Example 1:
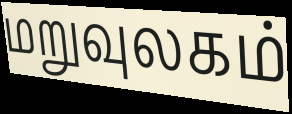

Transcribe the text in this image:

மறுவுலகம்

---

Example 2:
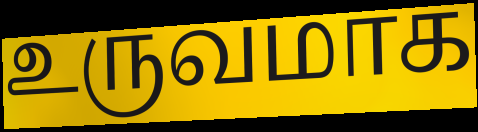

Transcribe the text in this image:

உருவமாக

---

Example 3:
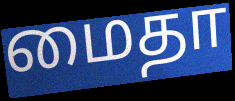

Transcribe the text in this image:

மைதா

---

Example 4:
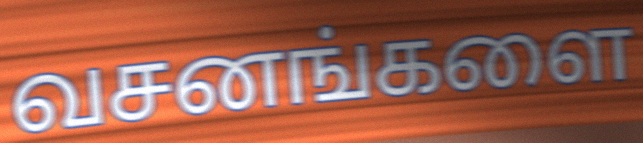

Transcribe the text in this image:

வசனங்களை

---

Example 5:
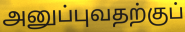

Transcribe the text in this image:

அனுப்புவதற்குப்